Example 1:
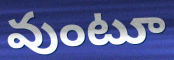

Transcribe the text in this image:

వుంటూ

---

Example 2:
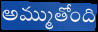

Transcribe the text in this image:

అమ్ముతోంది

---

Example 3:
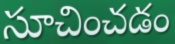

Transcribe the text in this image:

సూచించడం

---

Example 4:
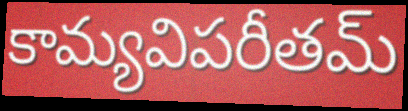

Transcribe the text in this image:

కామ్యవిపరీతమ్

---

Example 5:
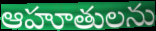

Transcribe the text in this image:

ఆహూతులను